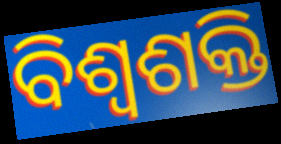
ବିଶ୍ଵଶକ୍ତି